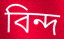
বিন্দ